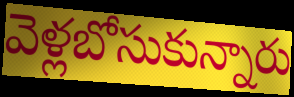
వెళ్లబోసుకున్నారు